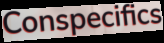
Conspecifics